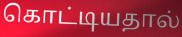
கொட்டியதால்